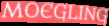
MOEGLING